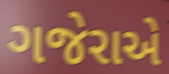
ગજેરાએ